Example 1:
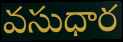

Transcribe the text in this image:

వసుధార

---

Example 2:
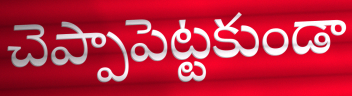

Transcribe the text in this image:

చెప్పాపెట్టకుండా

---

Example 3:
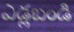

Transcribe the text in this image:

ఎడ్లబండి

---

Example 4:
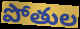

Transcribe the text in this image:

పోతుల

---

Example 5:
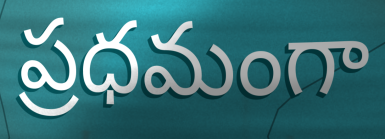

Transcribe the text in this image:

ప్రధమంగా